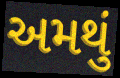
અમથું